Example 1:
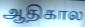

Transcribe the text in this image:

ஆதிகால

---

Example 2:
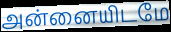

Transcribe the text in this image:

அன்னையிடமே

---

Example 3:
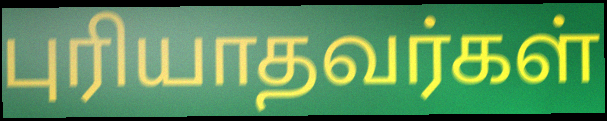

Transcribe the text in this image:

புரியாதவர்கள்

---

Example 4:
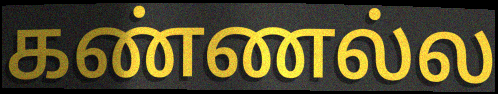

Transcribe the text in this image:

கண்ணல்ல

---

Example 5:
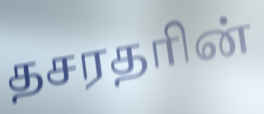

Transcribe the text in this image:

தசரதரின்